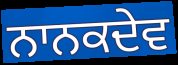
ਨਾਨਕਦੇਵ